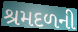
શ્રમદળની